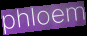
phloem